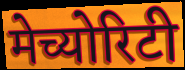
मेच्योरिटी